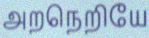
அறநெறியே